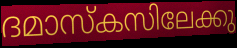
ദമാസ്കസിലേക്കു